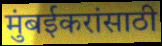
मुंबईकरांसाठी